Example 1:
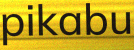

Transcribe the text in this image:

pikabu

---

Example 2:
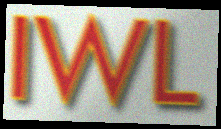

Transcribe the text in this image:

IWL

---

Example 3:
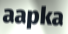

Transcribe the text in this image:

aapka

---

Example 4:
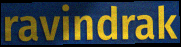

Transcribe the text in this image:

ravindrak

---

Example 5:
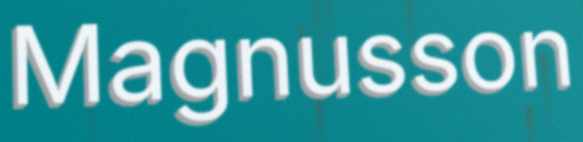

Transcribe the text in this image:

Magnusson